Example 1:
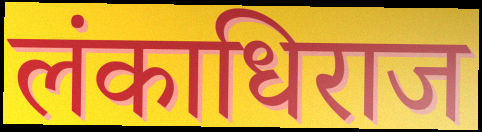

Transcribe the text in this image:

लंकाधिराज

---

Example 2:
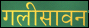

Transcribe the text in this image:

गलीसावन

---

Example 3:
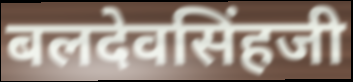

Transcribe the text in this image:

बलदेवसिंहजी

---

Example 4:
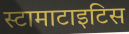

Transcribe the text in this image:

स्टामाटाइटिस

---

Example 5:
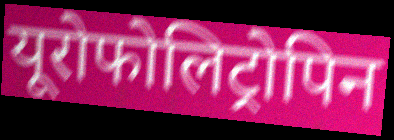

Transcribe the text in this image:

यूरोफोलिट्रोपिन